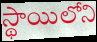
స్థాయిలోని